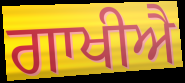
ਗਾਖੀਐ